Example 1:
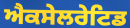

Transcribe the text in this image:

ਐਕਸੇਲਰੇਟਿਡ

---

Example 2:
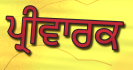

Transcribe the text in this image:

ਪ੍ਰੀਵਾਰਕ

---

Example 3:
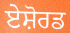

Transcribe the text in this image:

ਏਸ਼ੋਰਡ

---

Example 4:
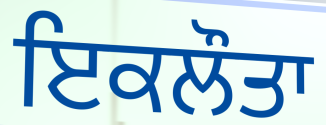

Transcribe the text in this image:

ਇਕਲੌਤਾ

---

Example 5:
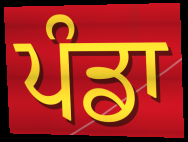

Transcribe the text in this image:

ਪੰਡਾ